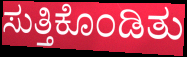
ಸುತ್ತಿಕೊಂಡಿತು